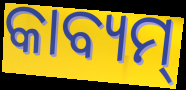
କାବ୍ୟମ୍